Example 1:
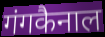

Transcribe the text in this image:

गंगकैनाल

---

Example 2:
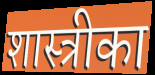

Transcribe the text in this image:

शास्त्रीका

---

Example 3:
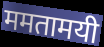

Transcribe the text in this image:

ममतामयी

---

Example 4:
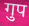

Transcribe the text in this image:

गुप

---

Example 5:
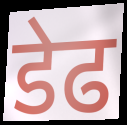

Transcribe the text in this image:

डेढ